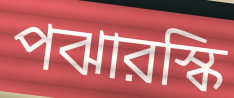
পঝারস্কি